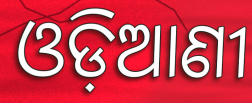
ଓଡ଼ିଆଣୀ